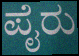
ಪೈರು